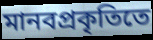
মানবপ্রকৃতিতে